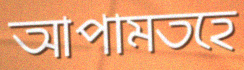
আপামতহে